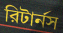
রিটার্নস